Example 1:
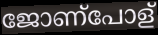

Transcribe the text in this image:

ജോണ്പോള്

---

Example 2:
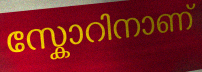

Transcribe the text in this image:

സ്കോറിനാണ്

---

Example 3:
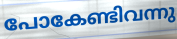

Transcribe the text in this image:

പോകേണ്ടിവന്നു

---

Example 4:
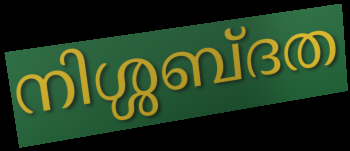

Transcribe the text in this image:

നിശ്ശബ്ദത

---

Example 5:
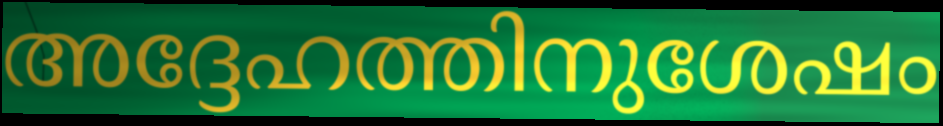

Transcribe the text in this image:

അദ്ദേഹത്തിനുശേഷം